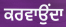
ਕਰਵਾਉਂਦਾ